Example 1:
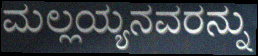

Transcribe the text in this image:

ಮಲ್ಲಯ್ಯನವರನ್ನು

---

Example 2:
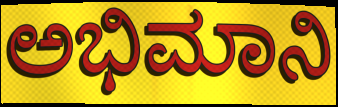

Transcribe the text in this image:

ಅಭಿಮಾನಿ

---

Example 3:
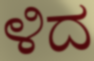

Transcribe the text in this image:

ಳಿದ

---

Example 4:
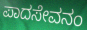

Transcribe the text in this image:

ಪಾದಸೇವನಂ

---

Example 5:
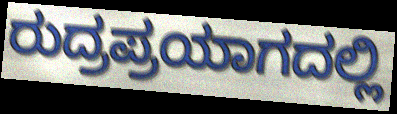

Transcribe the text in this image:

ರುದ್ರಪ್ರಯಾಗದಲ್ಲಿ